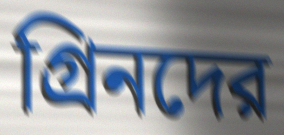
গ্রিনদের